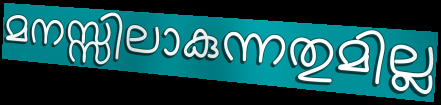
മനസ്സിലാകുന്നതുമില്ല